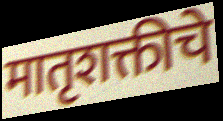
मातृशक्तीचे